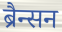
ब्रैन्सन